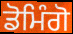
ਡੋਮਿੰਗੋ